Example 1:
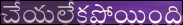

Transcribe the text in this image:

చేయలేకపోయింది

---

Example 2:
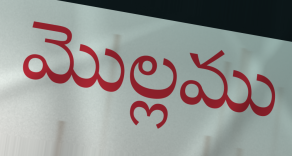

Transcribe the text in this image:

మొల్లము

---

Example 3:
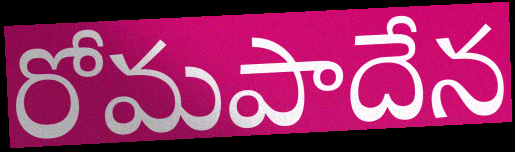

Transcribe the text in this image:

రోమపాదేన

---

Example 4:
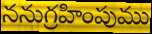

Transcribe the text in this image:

ననుగ్రహింపుము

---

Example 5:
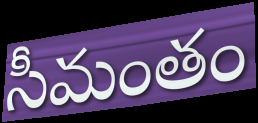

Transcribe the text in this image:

సీమంతం